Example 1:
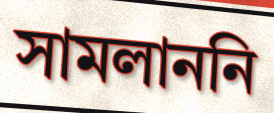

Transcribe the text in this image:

সামলাননি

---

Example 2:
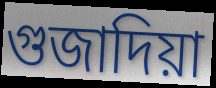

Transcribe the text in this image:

গুজাদিয়া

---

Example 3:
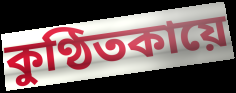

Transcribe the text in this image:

কুণ্ঠিতকায়ে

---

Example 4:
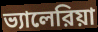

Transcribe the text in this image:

ভ্যালেরিয়া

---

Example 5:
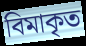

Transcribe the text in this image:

বিমাকৃত